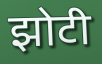
झोटी